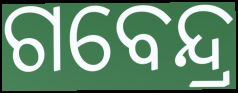
ଗବେନ୍ଦ୍ର